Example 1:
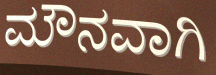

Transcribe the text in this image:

ಮೌನವಾಗಿ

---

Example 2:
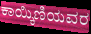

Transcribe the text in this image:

ಕಾಯ್ಕಿಣಿಯವರ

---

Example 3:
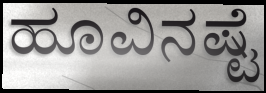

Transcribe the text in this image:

ಹೂವಿನಷ್ಟೆ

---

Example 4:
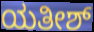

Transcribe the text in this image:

ಯತೀಶ್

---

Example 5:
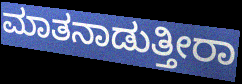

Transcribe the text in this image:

ಮಾತನಾಡುತ್ತೀರಾ